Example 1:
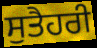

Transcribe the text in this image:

ਸੁਤੈਹਰੀ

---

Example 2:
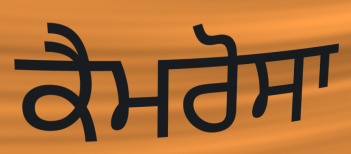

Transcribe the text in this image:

ਕੈਮਰੋਸਾ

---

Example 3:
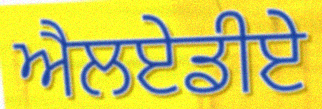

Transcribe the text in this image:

ਐਲਏਡੀਏ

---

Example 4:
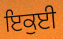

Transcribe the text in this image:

ਇਕੁਈ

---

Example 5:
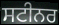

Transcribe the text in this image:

ਸਟੀਨਰ